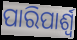
ପାରିପାର୍ଶ୍ୱ